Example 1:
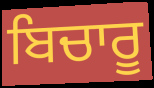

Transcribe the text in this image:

ਬਿਚਾਰੂ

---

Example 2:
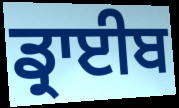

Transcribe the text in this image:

ਡ੍ਰਾਈਬ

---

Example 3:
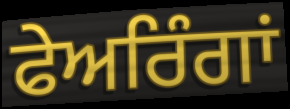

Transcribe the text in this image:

ਫੇਅਰਿੰਗਾਂ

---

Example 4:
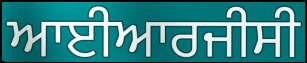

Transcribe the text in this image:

ਆਈਆਰਜੀਸੀ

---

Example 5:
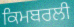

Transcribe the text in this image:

ਕਿਮਬਰਲੀ